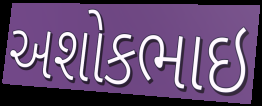
અશોકભાઇ